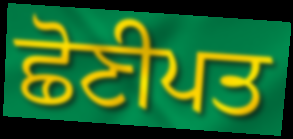
ਛੋਣੀਪਤ